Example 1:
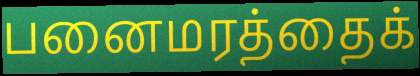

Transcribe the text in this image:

பனைமரத்தைக்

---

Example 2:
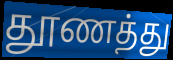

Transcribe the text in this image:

தூணத்து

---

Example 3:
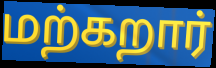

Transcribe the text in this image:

மற்கறார்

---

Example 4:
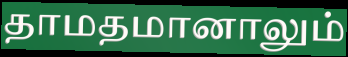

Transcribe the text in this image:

தாமதமானாலும்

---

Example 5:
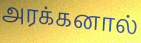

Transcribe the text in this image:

அரக்கனால்